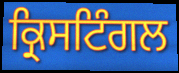
ਕ੍ਰਿਸਟਿੰਗਲ